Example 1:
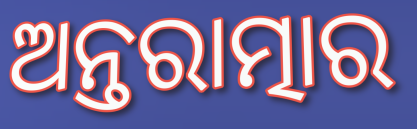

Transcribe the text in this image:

ଅନ୍ତରାତ୍ମାର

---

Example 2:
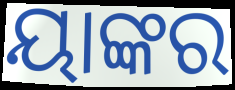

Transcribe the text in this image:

ୟାଙ୍କର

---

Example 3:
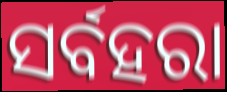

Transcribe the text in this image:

ସର୍ବହରା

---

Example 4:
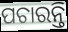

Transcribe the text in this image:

ପଚାରନ୍ତି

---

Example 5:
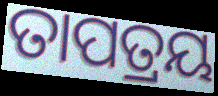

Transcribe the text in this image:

ତାପତ୍ରୟ